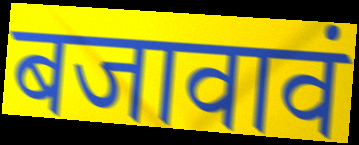
बजावावं